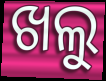
ଖଲୁ